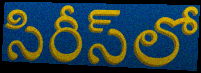
సిరీస్‌లో